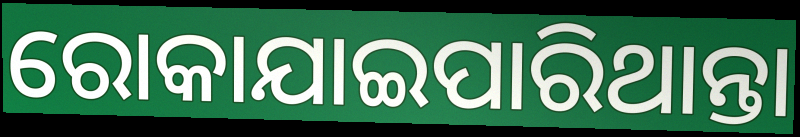
ରୋକାଯାଇପାରିଥାନ୍ତା